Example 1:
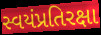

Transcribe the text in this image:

સ્વયંપ્રતિરક્ષા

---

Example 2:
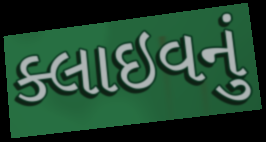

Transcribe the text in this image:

ક્લાઇવનું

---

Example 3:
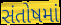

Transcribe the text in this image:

સંતોષમાં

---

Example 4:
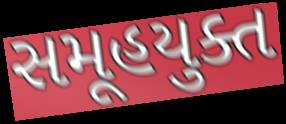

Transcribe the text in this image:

સમૂહયુક્ત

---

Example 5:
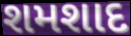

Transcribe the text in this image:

શમશાદ